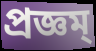
প্রজ্ঞম্